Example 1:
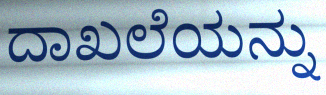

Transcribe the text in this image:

ದಾಖಲೆಯನ್ನು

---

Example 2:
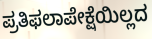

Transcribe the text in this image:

ಪ್ರತಿಫಲಾಪೇಕ್ಷೆಯಿಲ್ಲದ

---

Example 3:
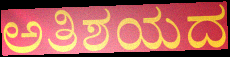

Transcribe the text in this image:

ಅತಿಶಯದ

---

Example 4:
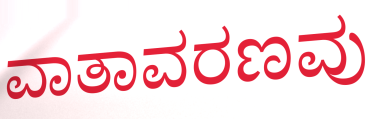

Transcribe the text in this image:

ವಾತಾವರಣವು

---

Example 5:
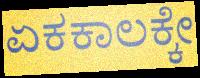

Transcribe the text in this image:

ಏಕಕಾಲಕ್ಕೇ